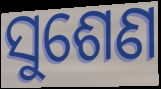
ସୁଶେଣ